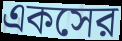
একসের